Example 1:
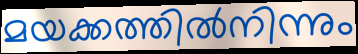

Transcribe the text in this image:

മയക്കത്തിൽനിന്നും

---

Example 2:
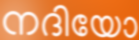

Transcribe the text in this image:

നദിയോ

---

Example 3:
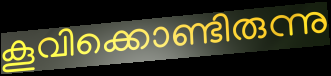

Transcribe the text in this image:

കൂവിക്കൊണ്ടിരുന്നു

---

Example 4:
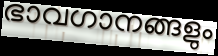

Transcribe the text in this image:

ഭാവഗാനങ്ങളും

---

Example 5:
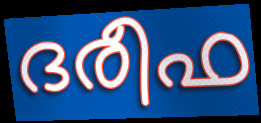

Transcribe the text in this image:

ദരീഫ